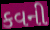
કવની